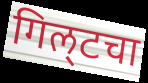
गिल्टचा